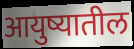
आयुष्यातील